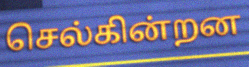
செல்கின்றன